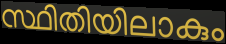
സ്ഥിതിയിലാകും